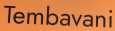
Tembavani